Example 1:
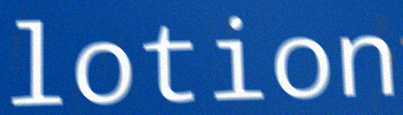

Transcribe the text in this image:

lotion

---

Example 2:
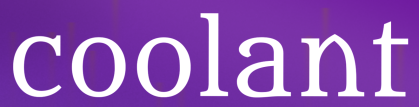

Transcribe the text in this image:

coolant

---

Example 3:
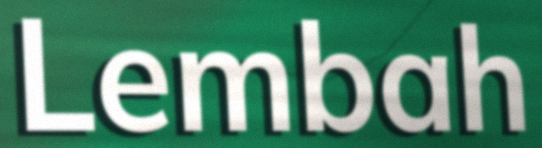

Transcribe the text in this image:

Lembah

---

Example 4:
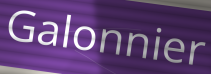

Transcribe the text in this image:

Galonnier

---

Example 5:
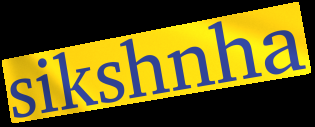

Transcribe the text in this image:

sikshnha